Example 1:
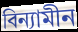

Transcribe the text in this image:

বিন্যামীন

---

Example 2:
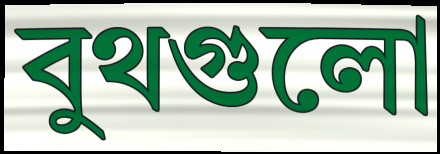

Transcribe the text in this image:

বুথগুলো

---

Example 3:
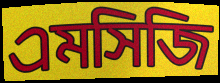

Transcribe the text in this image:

এমসিজি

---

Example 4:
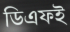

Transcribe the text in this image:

ডিএফই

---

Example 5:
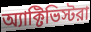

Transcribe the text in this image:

অ্যাক্টিভিস্টরা